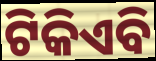
ଟିକିଏବି